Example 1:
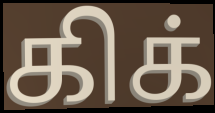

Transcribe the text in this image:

கிக்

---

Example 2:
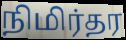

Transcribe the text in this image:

நிமிர்தர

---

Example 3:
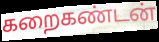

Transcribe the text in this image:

கறைகண்டன்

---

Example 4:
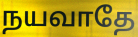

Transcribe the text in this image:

நயவாதே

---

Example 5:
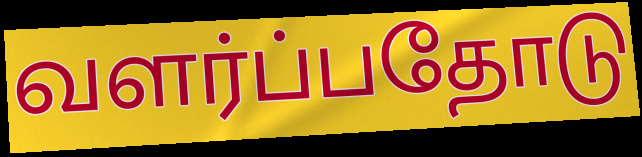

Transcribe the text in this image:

வளர்ப்பதோடு